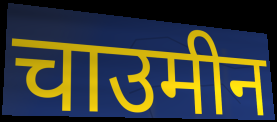
चाउमीन